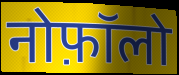
नोफ़ॉलो